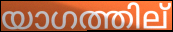
യാഗത്തില്